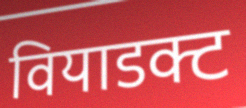
वियाडक्ट